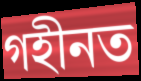
গহীনত